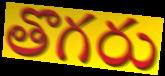
తొగరు